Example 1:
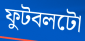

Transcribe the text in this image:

ফুটবলটো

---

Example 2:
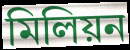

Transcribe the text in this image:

মিলিয়ন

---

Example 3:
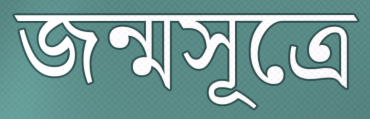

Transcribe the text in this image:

জন্মসূত্ৰে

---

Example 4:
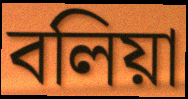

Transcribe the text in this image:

বলিয়া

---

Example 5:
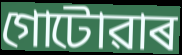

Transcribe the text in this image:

গোটোৱাৰ